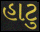
હાટુ